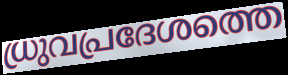
ധ്രുവപ്രദേശത്തെ